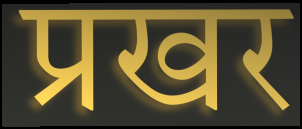
प्रखर